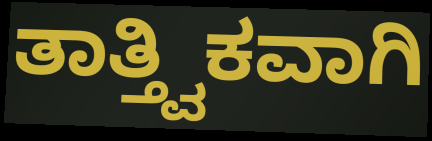
ತಾತ್ತ್ವಿಕವಾಗಿ